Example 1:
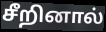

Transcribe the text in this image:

சீறினால்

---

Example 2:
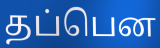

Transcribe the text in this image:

தப்பென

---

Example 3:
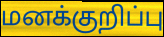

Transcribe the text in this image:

மனக்குறிப்பு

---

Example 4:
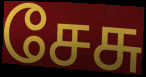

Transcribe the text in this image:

சேசு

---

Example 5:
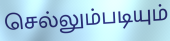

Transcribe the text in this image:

செல்லும்படியும்